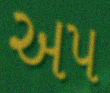
અપ